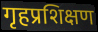
गृहप्रशिक्षण